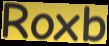
Roxb